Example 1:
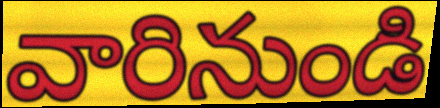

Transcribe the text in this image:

వారినుండి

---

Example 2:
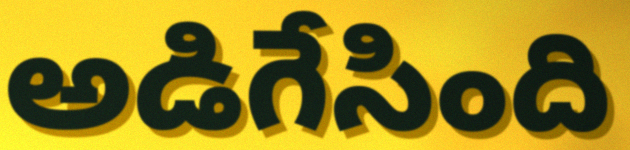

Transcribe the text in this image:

అడిగేసింది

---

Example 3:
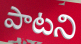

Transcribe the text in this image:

పాటని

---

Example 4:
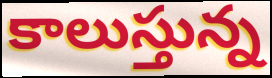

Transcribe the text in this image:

కాలుస్తున్న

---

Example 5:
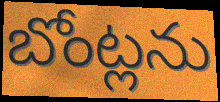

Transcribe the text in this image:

బోంట్లను